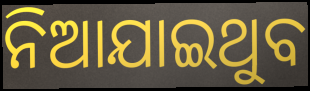
ନିଆଯାଇଥୁବ